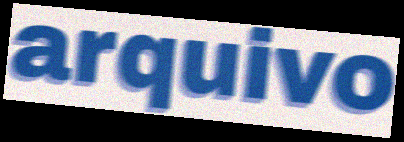
arquivo